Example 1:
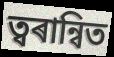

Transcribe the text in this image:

ত্বৰান্বিত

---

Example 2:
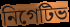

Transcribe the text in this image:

নিগেটিভ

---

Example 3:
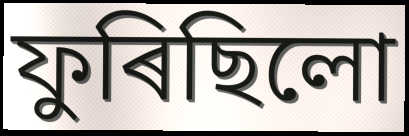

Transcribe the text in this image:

ফুৰিছিলো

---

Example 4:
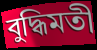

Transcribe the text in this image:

বুদ্ধিমতী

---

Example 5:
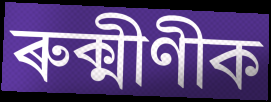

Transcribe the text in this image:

ৰুক্মীণীক